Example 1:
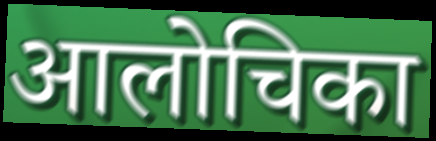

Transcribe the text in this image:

आलोचिका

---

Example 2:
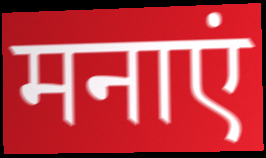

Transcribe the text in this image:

मनाएं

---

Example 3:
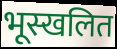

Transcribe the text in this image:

भूस्खलित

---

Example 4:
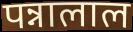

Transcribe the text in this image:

पन्नालाल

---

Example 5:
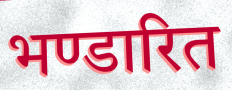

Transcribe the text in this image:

भण्डारित